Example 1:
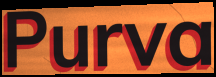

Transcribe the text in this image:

Purva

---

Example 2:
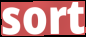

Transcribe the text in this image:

sort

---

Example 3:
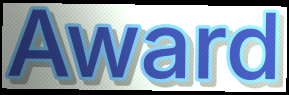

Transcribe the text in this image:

Award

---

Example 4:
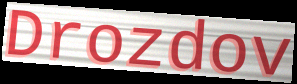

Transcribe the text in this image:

Drozdov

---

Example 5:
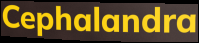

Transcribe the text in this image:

Cephalandra